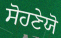
ਸੋਹਣੇਯੋ